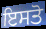
ਇਸਤੋ